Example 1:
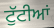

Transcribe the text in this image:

ਟੁੱਟੀਆਂ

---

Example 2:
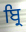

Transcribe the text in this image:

ਬ੍ਰਿ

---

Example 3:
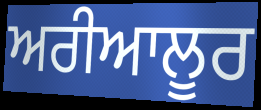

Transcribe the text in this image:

ਅਰੀਆਲੂਰ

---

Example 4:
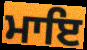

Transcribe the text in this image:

ਮਾਇ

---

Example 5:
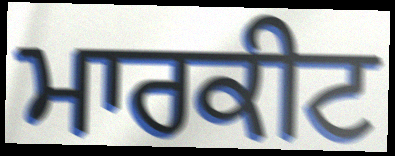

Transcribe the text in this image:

ਮਾਰਕੀਟ